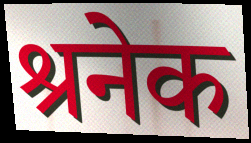
श्रनेक